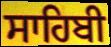
ਸਾਹਿਬੀ